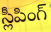
స్లీపింగ్